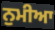
ਨੁਮੀਆ